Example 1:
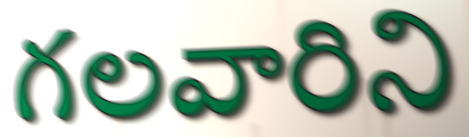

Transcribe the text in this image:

గలవారిని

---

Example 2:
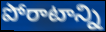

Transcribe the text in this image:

పోరాటాన్ని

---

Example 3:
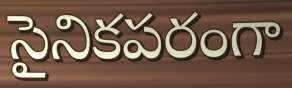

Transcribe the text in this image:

సైనికపరంగా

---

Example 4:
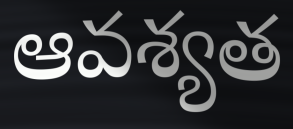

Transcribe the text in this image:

ఆవశ్యత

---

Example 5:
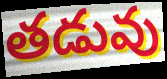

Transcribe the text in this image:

తడువు